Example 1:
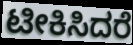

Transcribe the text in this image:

ಟೀಕಿಸಿದರೆ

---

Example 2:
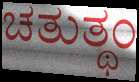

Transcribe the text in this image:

ಚತುತ್ಥಂ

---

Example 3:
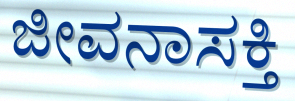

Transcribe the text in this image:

ಜೀವನಾಸಕ್ತಿ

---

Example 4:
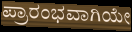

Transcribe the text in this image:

ಪ್ರಾರಂಭವಾಗಿಯೇ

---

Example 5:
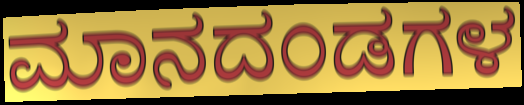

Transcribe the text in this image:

ಮಾನದಂಡಗಳ